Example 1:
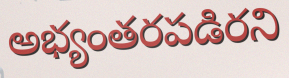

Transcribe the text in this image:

అభ్యంతరపడిరని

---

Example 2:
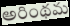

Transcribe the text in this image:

అరింథమ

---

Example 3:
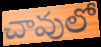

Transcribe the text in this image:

చావులో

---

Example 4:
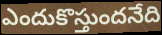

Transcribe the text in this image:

ఎందుకొస్తుందనేది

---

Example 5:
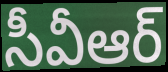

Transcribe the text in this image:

సీవీఆర్